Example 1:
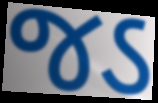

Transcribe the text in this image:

જડ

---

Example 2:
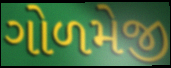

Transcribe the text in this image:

ગોળમેજી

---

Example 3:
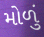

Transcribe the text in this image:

મોળું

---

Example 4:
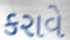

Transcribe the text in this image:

કરાવે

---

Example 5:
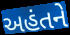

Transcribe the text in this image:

અહંતને